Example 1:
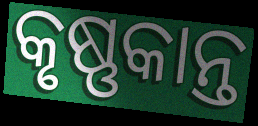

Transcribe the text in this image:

କୃଷ୍ଣକାନ୍ତ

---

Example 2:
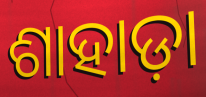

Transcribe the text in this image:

ଶାହାଡ଼ା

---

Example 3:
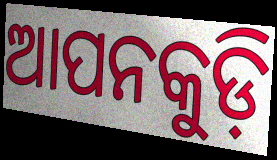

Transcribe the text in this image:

ଆପନକୁଡ଼ି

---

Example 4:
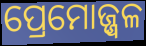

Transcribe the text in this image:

ପ୍ରେମୋଜ୍ଜ୍ୱଳ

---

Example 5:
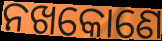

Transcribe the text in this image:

ନଖକୋଣେ